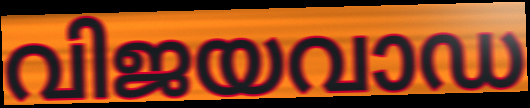
വിജയവാഡ